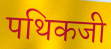
पथिकजी